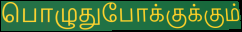
பொழுதுபோக்குக்கும்